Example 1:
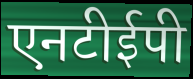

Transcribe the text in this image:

एनटीईपी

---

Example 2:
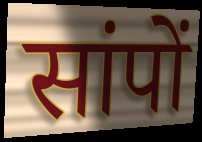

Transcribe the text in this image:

सांपों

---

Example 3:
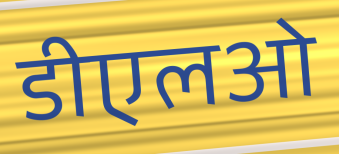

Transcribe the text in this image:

डीएलओ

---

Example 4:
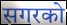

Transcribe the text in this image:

सगरको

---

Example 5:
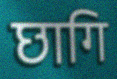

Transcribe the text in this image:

छागि